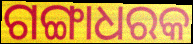
ଗଙ୍ଗାଧରକ